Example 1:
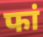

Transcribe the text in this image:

फां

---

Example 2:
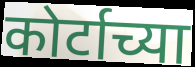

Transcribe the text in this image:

कोर्टाच्या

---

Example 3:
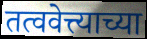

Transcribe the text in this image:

तत्ववेत्त्याच्या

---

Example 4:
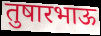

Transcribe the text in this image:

तुषारभाऊ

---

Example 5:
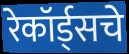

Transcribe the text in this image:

रेकॉर्ड्सचे